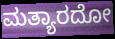
ಮತ್ಯಾರದೋ